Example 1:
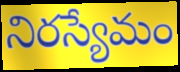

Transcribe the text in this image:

నిరస్యేమం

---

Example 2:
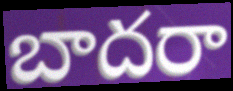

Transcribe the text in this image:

బాదరా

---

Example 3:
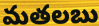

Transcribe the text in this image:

మతలబు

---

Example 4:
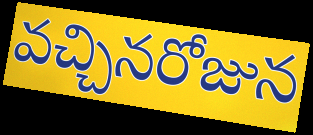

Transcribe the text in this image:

వచ్చినరోజున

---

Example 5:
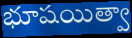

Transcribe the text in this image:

భూషయిత్వా